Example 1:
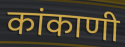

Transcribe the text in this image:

कांकाणी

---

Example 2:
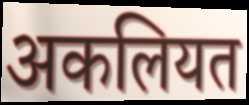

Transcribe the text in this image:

अकलियत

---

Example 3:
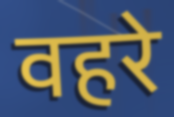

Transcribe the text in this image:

वहरे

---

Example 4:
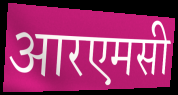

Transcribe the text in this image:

आरएमसी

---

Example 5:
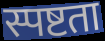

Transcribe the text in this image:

स्पष्टता